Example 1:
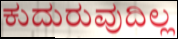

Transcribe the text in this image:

ಕುದುರುವುದಿಲ್ಲ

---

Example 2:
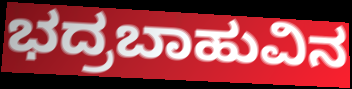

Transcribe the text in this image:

ಭದ್ರಬಾಹುವಿನ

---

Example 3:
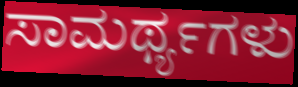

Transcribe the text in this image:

ಸಾಮರ್ಥ್ಯಗಳು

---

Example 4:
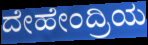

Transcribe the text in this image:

ದೇಹೇಂದ್ರಿಯ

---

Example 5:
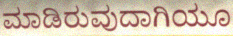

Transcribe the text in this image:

ಮಾಡಿರುವುದಾಗಿಯೂ